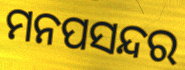
ମନପସନ୍ଦର